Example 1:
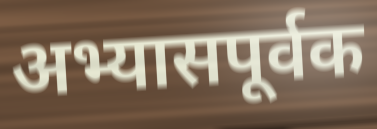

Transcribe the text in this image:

अभ्यासपूर्वक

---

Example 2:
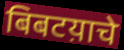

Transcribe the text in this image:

बिबटय़ाचे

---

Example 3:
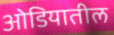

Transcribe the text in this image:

ओडियातील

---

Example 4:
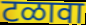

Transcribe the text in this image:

टळावा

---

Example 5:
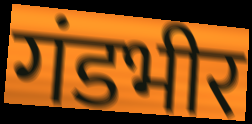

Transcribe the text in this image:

गंडभीर